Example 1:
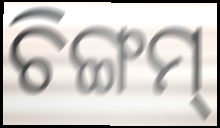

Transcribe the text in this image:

ଚିଙ୍ଗମ୍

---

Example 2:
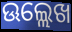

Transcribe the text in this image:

ଊଲ୍ଲେଖ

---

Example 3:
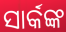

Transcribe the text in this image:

ସାର୍କଙ୍କ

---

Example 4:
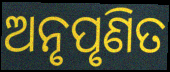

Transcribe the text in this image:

ଅନୃପୃଣିତ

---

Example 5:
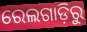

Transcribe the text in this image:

ରେଲଗାଡ଼ିରୁ